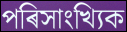
পৰিসাংখ্যিক